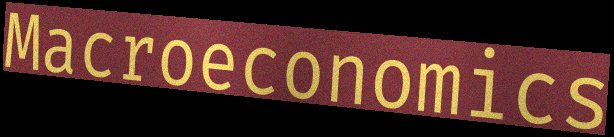
Macroeconomics